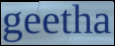
geetha